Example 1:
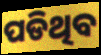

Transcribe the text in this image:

ପଡିଥିବ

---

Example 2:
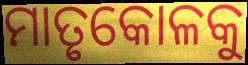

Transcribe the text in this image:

ମାତୃକୋଳକୁ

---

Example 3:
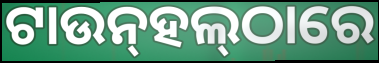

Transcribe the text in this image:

ଟାଉନ୍‌ହଲ୍‌ଠାରେ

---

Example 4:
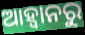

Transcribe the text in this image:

ଆହ୍ବାନରୁ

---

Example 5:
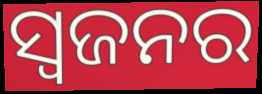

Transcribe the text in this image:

ସ୍ୱଜନର